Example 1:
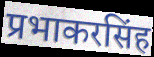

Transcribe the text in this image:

प्रभाकरसिंह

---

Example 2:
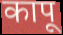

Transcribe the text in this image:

कापू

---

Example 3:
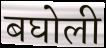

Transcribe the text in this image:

बघोली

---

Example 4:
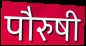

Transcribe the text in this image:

पौरुषी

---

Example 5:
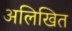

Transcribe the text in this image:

अलिखित